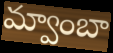
మ్వాంబా